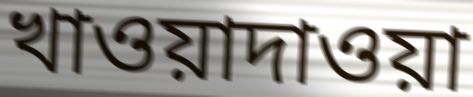
খাওয়াদাওয়া